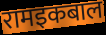
रामइकबाल